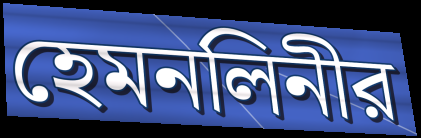
হেমনলিনীর